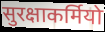
सुरक्षाकर्मियो